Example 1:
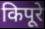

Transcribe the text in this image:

किपूरे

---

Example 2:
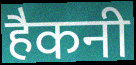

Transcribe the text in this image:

हैकनी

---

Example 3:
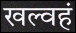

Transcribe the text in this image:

खल्वहं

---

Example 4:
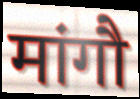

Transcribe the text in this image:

मांगौ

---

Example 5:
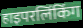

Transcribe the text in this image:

हाइपरलिंकिंग